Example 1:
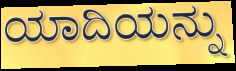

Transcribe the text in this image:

ಯಾದಿಯನ್ನು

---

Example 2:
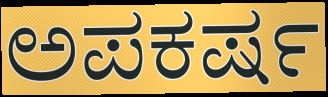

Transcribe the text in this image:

ಅಪಕರ್ಷ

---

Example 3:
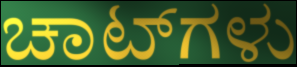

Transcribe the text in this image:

ಚಾಟ್‌ಗಳು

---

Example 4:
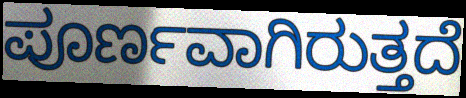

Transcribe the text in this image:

ಪೂರ್ಣವಾಗಿರುತ್ತದೆ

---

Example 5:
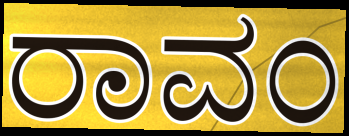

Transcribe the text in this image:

ರಾವಂ